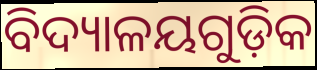
ବିଦ୍ୟାଳୟଗୁଡ଼ିକ